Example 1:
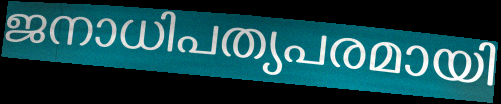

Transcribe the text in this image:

ജനാധിപത്യപരമായി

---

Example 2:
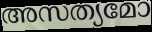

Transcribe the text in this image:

അസത്യമോ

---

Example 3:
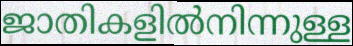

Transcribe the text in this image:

ജാതികളിൽനിന്നുള്ള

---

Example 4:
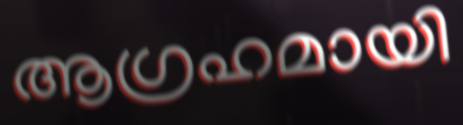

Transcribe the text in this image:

ആഗ്രഹമായി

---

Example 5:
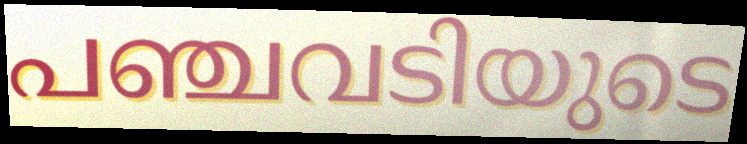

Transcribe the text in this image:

പഞ്ചവടിയുടെ